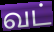
வட்